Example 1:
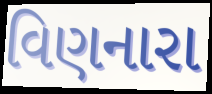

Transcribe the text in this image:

વિણનારા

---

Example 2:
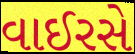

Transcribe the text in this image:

વાઈરસે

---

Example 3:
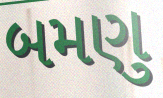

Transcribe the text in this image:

બમણુ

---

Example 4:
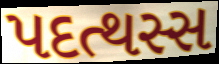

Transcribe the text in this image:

પદત્થસ્સ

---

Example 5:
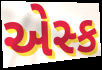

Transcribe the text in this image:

એસ્ક